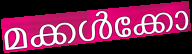
മക്കൾക്കോ